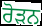
ਰੋੜਨ